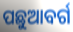
ପଛୁଆବର୍ଗ